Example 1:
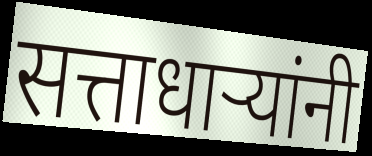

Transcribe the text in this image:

सत्ताधाऱ्यांनी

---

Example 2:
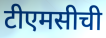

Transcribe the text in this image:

टीएमसीची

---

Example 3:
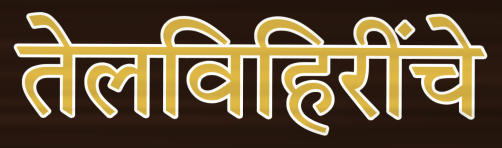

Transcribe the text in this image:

तेलविहिरींचे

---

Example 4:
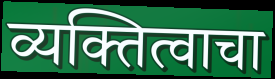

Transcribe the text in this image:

व्यक्तित्वाचा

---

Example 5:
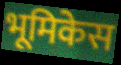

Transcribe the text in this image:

भूमिकेस